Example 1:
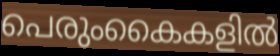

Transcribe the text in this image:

പെരുംകൈകളിൽ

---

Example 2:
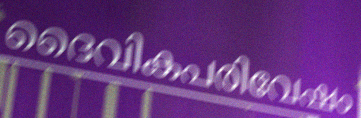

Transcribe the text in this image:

ദൈവികപരിവേഷം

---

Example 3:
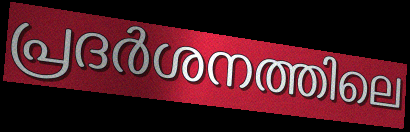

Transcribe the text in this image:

പ്രദർശനത്തിലെ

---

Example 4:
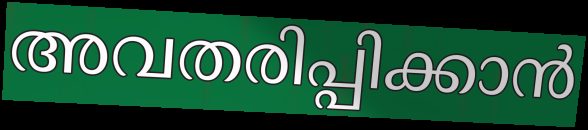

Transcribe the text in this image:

അവതരിപ്പിക്കാൻ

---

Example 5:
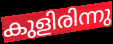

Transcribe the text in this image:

കുളിരിന്നു